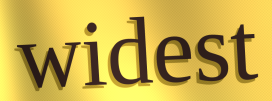
widest